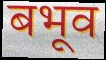
बभूव